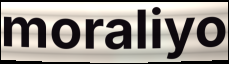
moraliyo